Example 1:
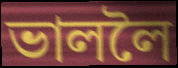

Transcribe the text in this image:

ভাললৈ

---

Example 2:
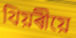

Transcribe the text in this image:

থিয়ৰীয়ে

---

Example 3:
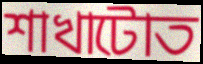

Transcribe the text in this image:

শাখাটোত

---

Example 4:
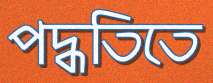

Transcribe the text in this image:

পদ্ধতিতে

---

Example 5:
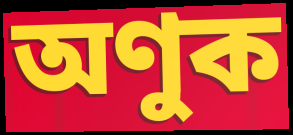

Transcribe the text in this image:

অণুক